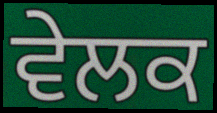
ਵੇਲਕ